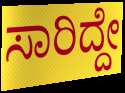
ಸಾರಿದ್ದೇ